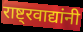
राष्ट्रवाद्यांनी